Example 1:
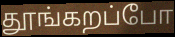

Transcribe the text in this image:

தூங்கறப்போ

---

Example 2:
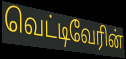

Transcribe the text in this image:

வெட்டிவேரின்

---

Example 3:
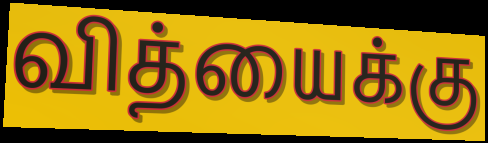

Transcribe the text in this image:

வித்யைக்கு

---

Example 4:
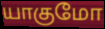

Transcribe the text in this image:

யாகுமோ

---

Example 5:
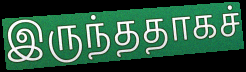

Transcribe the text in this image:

இருந்ததாகச்